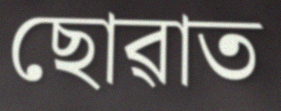
ছোৱাত